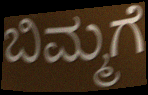
ಬಿಮ್ಮಗೆ